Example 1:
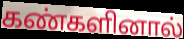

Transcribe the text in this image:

கண்களினால்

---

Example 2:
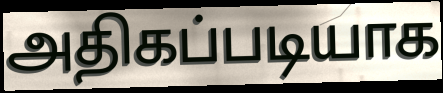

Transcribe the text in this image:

அதிகப்படியாக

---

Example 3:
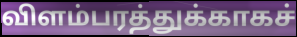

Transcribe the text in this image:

விளம்பரத்துக்காகச்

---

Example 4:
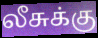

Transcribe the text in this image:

லீசுக்கு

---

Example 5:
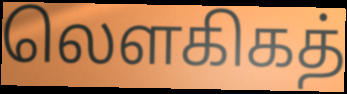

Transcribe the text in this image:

லௌகிகத்